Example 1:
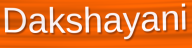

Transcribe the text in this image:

Dakshayani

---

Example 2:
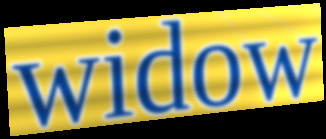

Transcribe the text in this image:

widow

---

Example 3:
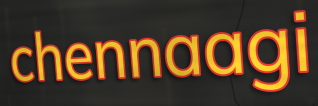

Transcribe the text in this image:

chennaagi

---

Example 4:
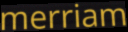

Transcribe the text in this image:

merriam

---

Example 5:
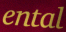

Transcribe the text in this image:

ental